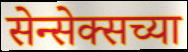
सेन्सेक्सच्या